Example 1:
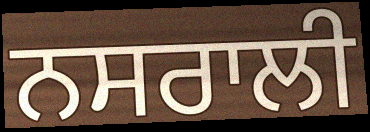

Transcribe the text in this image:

ਨਸਰਾਲੀ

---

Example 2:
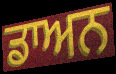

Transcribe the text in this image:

ਡਾਅਨ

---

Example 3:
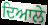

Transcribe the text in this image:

ਦਿਆਲੇ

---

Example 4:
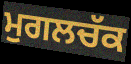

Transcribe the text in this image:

ਮੁਗਲਚੱਕ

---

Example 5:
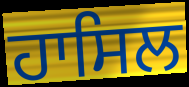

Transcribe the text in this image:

ਹਾਸਿਲ